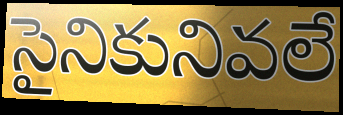
సైనికునివలే